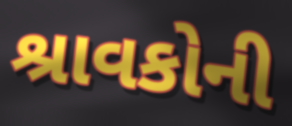
શ્રાવકોની